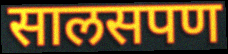
सालसपण